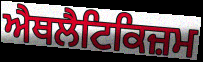
ਐਥਲੈਟਿਕਿਜ਼ਮ